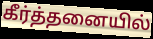
கீர்த்தனையில்